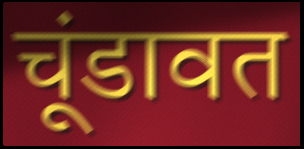
चूंडावत